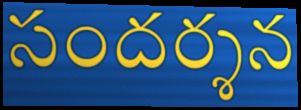
సందర్శన